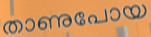
താണുപോയ